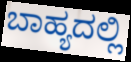
ಬಾಹ್ಯದಲ್ಲಿ